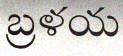
బ్రళయ